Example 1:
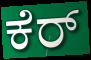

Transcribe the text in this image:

ಕೆರ್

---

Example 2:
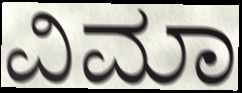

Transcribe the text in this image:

ವಿಮಾ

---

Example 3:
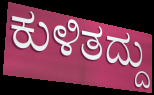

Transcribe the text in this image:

ಕುಳಿತದ್ದು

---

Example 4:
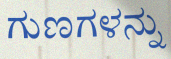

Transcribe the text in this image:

ಗುಣಗಳನ್ನು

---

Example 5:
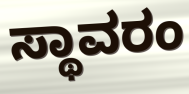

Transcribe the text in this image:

ಸ್ಥಾವರಂ